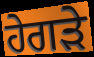
ਹੇਗੜੇ